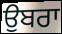
ਉਬਰਾ